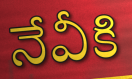
నేవీకి